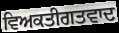
ਵਿਅਕਤੀਗਤਵਾਦ